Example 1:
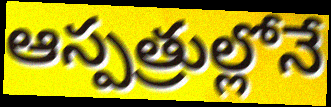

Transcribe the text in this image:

ఆస్పత్రుల్లోనే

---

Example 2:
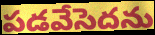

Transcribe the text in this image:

పడవేసెదను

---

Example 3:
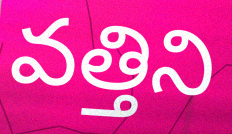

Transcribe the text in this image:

వత్తిని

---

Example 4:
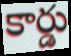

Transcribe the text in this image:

కార్డు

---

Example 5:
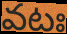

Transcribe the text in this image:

వటః